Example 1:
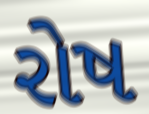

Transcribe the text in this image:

રોષ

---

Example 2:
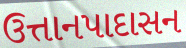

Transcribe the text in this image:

ઉત્તાનપાદાસન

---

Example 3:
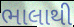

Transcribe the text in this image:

ભાલાથી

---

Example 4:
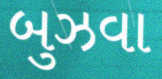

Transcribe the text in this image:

બુઝવા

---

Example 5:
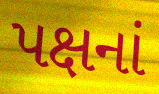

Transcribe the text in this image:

પક્ષનાં